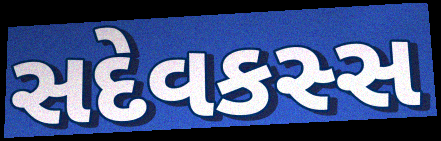
સદેવકસ્સ